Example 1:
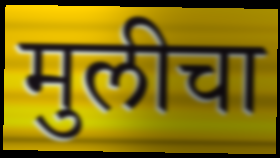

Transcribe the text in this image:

मुलीचा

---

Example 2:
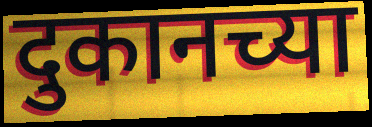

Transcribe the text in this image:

दुकानच्या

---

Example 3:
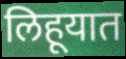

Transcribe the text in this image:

लिहूयात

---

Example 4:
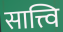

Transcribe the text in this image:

सात्त्वि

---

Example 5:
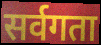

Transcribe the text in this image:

सर्वगता